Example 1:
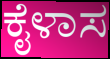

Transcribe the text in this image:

ಕೈಳಾಸ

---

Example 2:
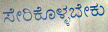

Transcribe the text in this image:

ಸೇರಿಕೊಳ್ಳಬೇಕು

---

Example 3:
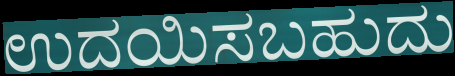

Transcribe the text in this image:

ಉದಯಿಸಬಹುದು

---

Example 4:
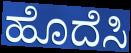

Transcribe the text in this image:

ಹೊದೆಸಿ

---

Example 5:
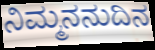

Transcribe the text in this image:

ನಿಮ್ಮನನುದಿನ